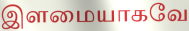
இளமையாகவே